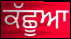
ਕੱਛੂਆ